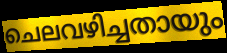
ചെലവഴിച്ചതായും